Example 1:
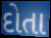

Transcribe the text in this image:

દોતા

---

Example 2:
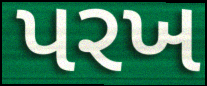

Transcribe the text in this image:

પરખ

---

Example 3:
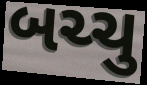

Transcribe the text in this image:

બચ્ચુ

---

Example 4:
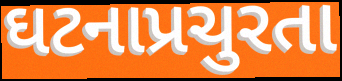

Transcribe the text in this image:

ઘટનાપ્રચુરતા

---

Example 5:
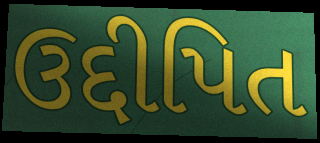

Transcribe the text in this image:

ઉદ્દીપિત